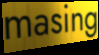
masing